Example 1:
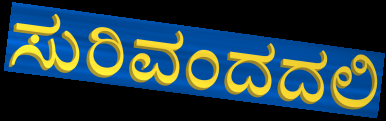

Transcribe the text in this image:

ಸುರಿವಂದದಲಿ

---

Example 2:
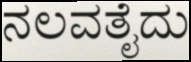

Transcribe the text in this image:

ನಲವತೈದು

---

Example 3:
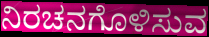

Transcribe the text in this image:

ನಿರಚನಗೊಳಿಸುವ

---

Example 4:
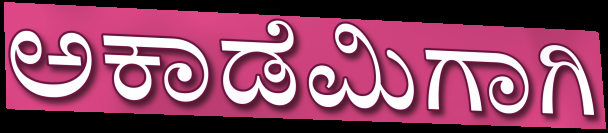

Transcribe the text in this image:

ಅಕಾಡೆಮಿಗಾಗಿ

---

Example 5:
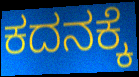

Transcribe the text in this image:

ಕದನಕ್ಕೆ